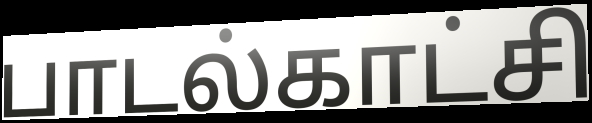
பாடல்காட்சி